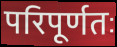
परिपूर्णतः